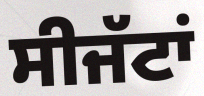
ਸੀਜੱਟਾਂ